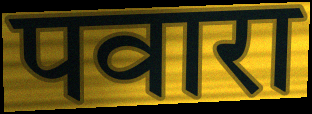
पवारा